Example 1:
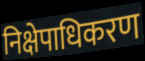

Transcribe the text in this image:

निक्षेपाधिकरण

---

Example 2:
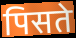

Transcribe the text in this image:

पिसते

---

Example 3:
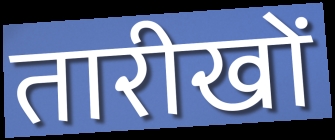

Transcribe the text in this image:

तारीखों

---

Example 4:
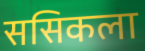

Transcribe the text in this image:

ससिकला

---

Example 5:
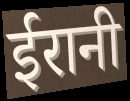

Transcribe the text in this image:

ईरानी